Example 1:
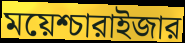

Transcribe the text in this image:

ময়েশ্চারাইজার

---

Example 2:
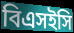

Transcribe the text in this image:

বিএসইসি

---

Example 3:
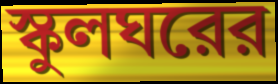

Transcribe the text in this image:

স্কুলঘরের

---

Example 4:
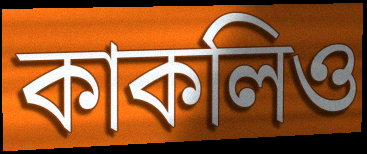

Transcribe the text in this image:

কাকলিও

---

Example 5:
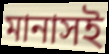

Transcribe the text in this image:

মানাসই